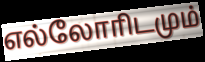
எல்லோரிடமும்